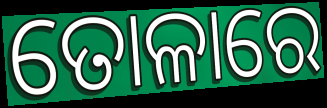
ତୋଳାରେ